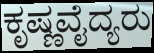
ಕೃಷ್ಣವೈದ್ಯರು